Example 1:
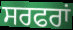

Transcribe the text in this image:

ਸਰਫਰਾਂ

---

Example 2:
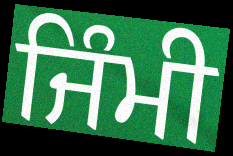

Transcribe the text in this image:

ਜਿੰਮੀ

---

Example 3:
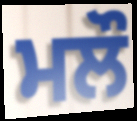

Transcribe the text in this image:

ਮਲੌ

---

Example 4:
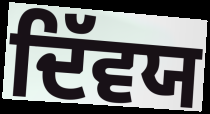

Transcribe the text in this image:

ਦਿੱਵਯ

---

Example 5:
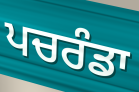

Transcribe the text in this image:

ਪਚਰੰਡਾ